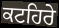
ਕਟਹਿਰੇ